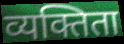
व्यक्तिता